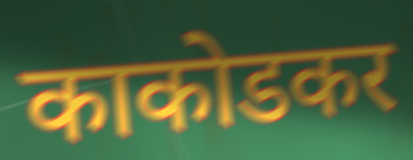
काकोडकर